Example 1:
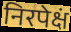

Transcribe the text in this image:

निरपेक्षं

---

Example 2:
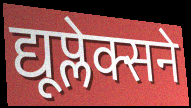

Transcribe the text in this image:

द्यूप्लेक्सने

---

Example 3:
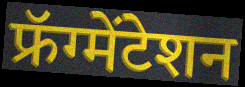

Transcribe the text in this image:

फ्रॅग्मेंटेशन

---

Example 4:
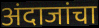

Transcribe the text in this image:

अंदाजांचा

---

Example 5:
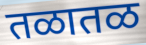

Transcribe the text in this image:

तळातळ